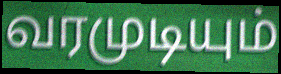
வரமுடியும்